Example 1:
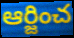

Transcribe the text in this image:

ఆర్జించ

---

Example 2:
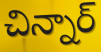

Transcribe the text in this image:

చిన్నార్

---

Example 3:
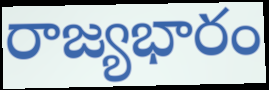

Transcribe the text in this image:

రాజ్యభారం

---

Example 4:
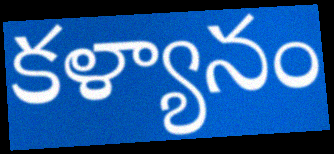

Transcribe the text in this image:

కళ్యానం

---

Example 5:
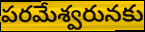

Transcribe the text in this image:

పరమేశ్వరునకు